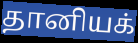
தானியக்